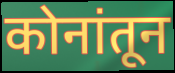
कोनांतून